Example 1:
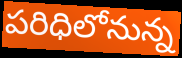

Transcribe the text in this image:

పరిధిలోనున్న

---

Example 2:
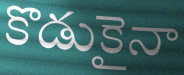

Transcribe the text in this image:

కొడుకైనా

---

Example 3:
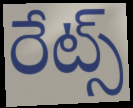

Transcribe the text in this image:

రేట్స్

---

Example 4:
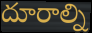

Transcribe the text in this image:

దూరాల్ని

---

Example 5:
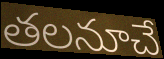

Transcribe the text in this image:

తలనూచే